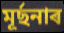
মূৰ্ছনাৰ